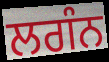
ਲਗੰਨ